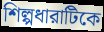
শিল্পধারাটিকে